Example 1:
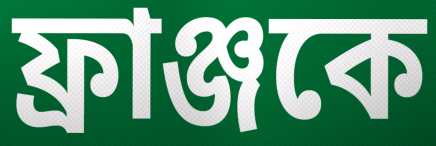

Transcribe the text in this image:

ফ্রাঞ্জকে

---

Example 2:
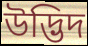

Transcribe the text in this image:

উদ্ভিদ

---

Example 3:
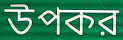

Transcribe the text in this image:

উপকর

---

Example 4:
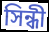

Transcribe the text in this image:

সিন্ধী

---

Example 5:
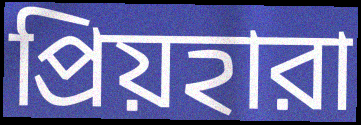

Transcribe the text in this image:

প্রিয়হারা